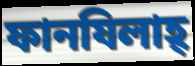
ফানযিলাহ্